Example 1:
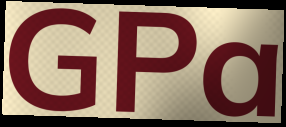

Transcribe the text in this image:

GPa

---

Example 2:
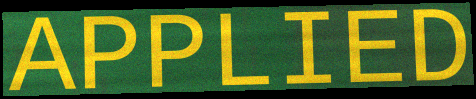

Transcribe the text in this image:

APPLIED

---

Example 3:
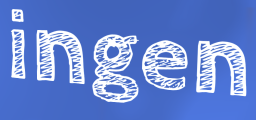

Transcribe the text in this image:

ingen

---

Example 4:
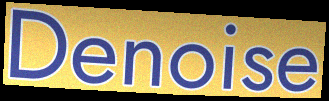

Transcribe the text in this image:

Denoise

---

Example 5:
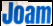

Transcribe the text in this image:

Joam